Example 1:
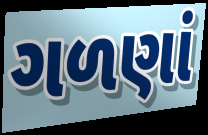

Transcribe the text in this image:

ગળણાં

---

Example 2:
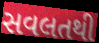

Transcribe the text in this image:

સવલતથી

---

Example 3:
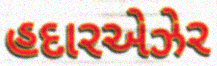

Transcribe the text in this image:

હદારએઝેર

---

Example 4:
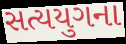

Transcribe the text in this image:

સત્યયુગના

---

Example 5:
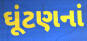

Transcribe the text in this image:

ઘૂંટણનાં